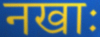
नखाः